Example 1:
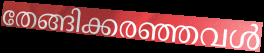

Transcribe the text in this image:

തേങ്ങിക്കരഞ്ഞവൾ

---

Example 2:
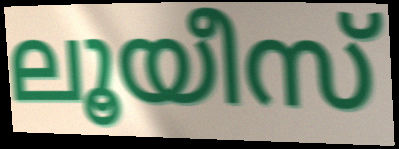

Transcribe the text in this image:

ലൂയീസ്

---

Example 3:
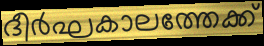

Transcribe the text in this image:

ദീർഘകാലത്തേക്ക്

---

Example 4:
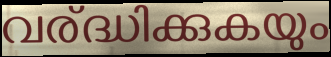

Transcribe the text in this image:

വര്ദ്ധിക്കുകയും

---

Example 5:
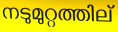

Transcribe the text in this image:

നടുമുറ്റത്തില്